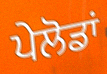
ਪੇਲੋਡਾਂ